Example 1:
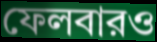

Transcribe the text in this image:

ফেলবারও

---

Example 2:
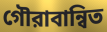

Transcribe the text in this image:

গৌরাবান্বিত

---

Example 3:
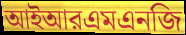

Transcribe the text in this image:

আইআরএমএনজি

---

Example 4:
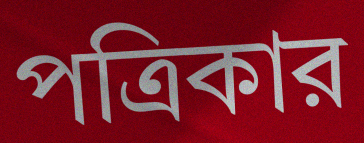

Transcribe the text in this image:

পত্রিকার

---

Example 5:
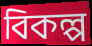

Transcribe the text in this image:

বিকল্প